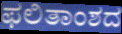
ಫಲಿತಾಂಶದ